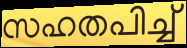
സഹതപിച്ച്